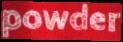
powder